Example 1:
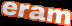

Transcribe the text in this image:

eram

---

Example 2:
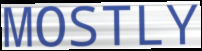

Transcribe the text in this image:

MOSTLY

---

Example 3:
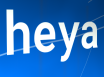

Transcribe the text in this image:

heya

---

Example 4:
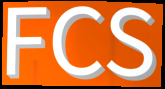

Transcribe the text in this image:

FCS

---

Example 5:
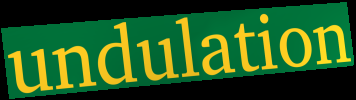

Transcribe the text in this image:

undulation